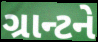
ગ્રાન્ટને